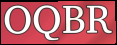
OQBR